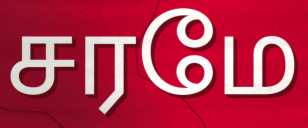
சரமே